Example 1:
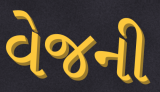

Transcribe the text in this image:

વેજની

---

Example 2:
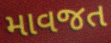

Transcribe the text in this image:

માવજત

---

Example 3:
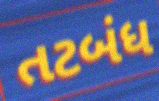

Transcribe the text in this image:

તટબંધ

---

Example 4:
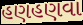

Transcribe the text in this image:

હણહણવા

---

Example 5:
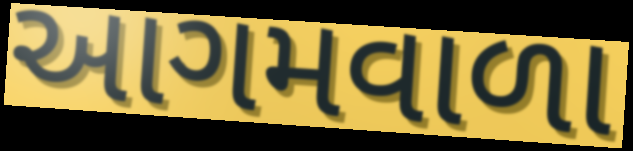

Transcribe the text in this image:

આગમવાળા